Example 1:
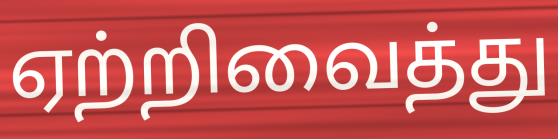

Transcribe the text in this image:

ஏற்றிவைத்து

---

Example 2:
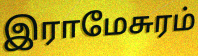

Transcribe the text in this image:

இராமேசுரம்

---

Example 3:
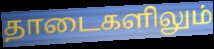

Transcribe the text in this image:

தாடைகளிலும்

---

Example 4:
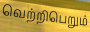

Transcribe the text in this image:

வெற்றிபெறும்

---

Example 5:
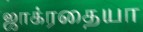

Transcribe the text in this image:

ஜாக்ரதையா